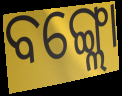
ବଙ୍ଗ୍ଲୋ